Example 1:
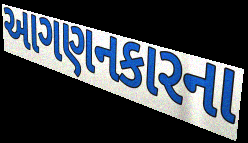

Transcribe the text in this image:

આગણનકારના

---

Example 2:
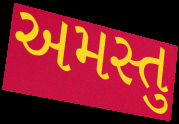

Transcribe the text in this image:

અમસ્તુ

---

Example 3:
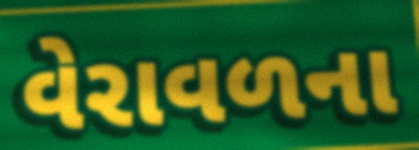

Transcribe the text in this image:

વેરાવળના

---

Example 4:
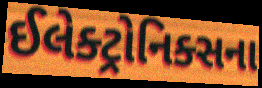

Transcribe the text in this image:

ઈલેક્ટ્રોનિક્સના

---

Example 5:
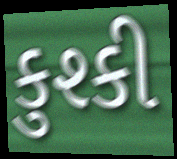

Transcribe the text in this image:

કુશ્કી